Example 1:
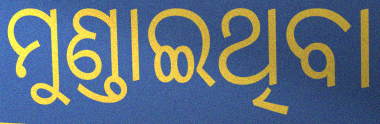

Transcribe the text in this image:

ମୁଣ୍ଡାଇଥିବା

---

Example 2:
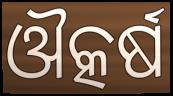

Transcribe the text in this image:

ଔତ୍କର୍ଷ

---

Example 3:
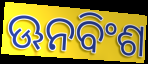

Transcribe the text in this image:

ଊନବିଂଶ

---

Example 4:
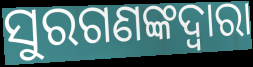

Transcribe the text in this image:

ସୁରଗଣଙ୍କଦ୍ୱାରା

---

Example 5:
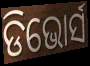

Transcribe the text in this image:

ଡିଭୋର୍ସ